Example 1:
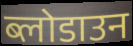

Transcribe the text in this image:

ब्लोडाउन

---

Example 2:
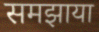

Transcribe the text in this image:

समझाया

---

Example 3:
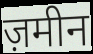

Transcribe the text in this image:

ज़मीन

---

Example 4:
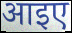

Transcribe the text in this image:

आइए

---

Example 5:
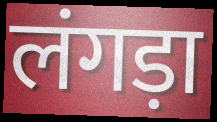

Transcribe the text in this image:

लंगड़ा